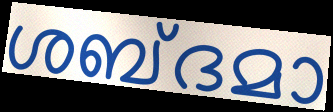
ശബ്ദമാ